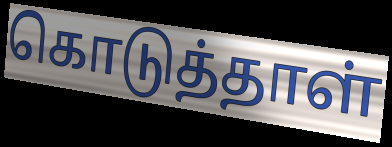
கொடுத்தாள்